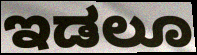
ಇಡಲೂ